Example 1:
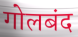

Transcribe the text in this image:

गोलबंद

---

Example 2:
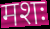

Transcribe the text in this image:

मशः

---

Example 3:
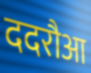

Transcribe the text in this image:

ददरौआ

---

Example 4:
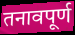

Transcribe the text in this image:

तनावपूर्ण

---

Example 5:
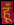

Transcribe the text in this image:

हूंँ